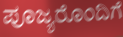
ಪೂಜ್ಯರೊಂದಿಗೆ